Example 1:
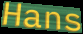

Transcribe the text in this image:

Hans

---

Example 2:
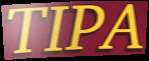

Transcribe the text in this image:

TIPA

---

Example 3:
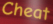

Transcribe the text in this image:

Cheat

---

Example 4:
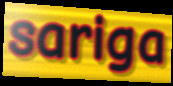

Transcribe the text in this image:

sariga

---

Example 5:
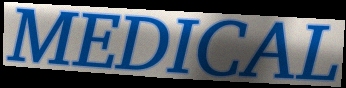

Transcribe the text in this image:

MEDICAL